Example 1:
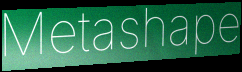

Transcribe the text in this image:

Metashape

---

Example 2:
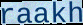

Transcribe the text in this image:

raakh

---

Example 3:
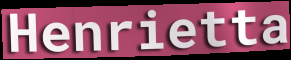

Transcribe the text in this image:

Henrietta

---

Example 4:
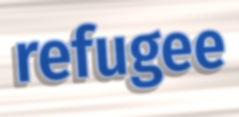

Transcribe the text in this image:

refugee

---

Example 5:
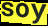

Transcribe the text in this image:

soy